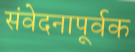
संवेदनापूर्वक